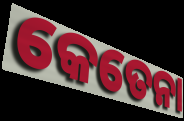
କେତେନା